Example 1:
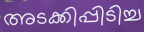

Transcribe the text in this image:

അടക്കിപ്പിടിച്ച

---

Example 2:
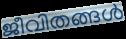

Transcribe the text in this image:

ജീവിതങ്ങൾ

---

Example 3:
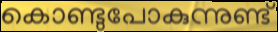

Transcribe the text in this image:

കൊണ്ടുപോകുന്നുണ്ട്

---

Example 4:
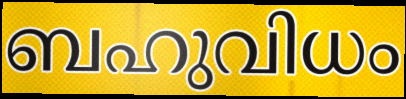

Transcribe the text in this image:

ബഹുവിധം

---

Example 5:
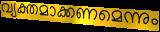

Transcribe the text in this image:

വ്യക്തമാക്കണമെന്നും